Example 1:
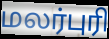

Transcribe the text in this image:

மலர்புரி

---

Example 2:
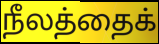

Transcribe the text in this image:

நீலத்தைக்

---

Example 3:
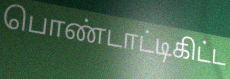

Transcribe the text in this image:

பொண்டாட்டிகிட்ட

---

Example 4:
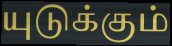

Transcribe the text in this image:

யுடுக்கும்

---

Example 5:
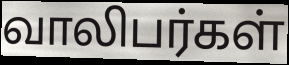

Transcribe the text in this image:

வாலிபர்கள்